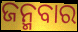
ଜନ୍ମବାର